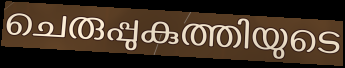
ചെരുപ്പുകുത്തിയുടെ